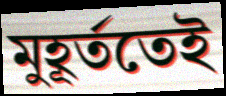
মুহূৰ্ততেই